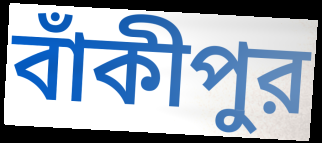
বাঁকীপুর